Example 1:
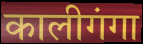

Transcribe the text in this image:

कालीगंगा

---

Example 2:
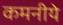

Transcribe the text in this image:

कमनीये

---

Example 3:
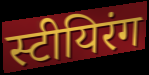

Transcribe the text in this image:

स्टीयिरंग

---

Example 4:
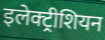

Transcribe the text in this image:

इलेक्‍ट्रीशियन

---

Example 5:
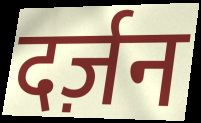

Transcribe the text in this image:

दर्ज़न